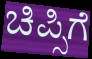
ಚಿಪ್ಸಿಗೆ